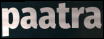
paatra